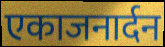
एकाजनार्दन